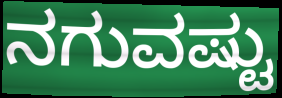
ನಗುವಷ್ಟು